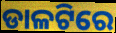
ଡାଳଟିରେ